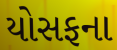
યોસફના